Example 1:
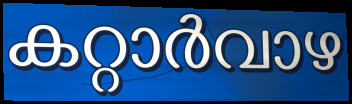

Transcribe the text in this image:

കറ്റാർവാഴ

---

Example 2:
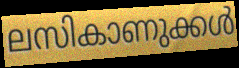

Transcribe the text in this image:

ലസികാണുക്കൾ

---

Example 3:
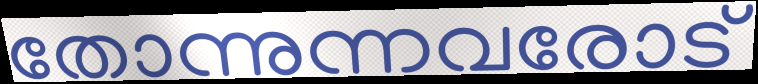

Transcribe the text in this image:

തോന്നുന്നവരോട്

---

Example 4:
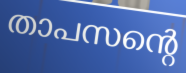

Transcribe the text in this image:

താപസന്റെ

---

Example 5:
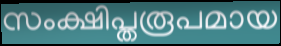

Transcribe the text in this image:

സംക്ഷിപ്തരൂപമായ